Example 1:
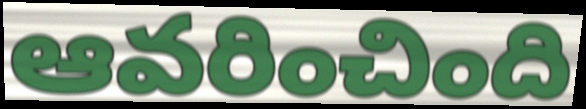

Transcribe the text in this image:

ఆవరించింది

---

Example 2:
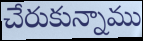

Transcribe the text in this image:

చేరుకున్నాము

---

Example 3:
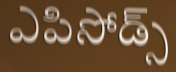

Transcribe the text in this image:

ఎపిసోడ్స్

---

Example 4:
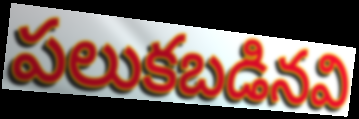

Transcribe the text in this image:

పలుకబడినవి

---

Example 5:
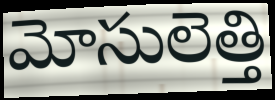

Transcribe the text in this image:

మోసులెత్తి